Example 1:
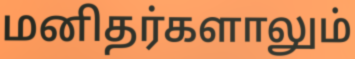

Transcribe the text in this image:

மனிதர்களாலும்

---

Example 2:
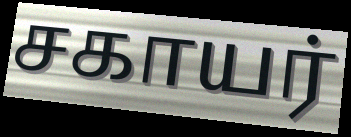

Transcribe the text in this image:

சகாயர்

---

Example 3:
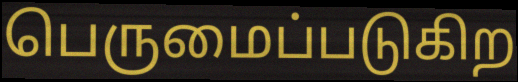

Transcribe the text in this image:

பெருமைப்படுகிற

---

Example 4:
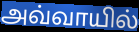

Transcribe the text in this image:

அவ்வாயில்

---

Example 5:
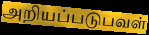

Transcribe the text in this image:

அறியப்படுபவள்